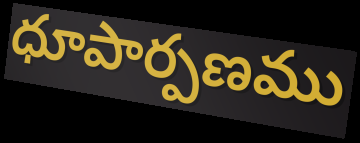
ధూపార్పణము